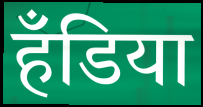
हँडिया